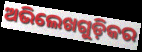
ଅଭିଲେଖଗୁଡ଼ିକର